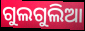
ଗୁଲଗୁଲିଆ